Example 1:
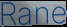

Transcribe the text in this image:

Rane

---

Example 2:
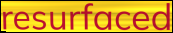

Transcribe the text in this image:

resurfaced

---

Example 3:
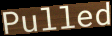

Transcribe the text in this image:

Pulled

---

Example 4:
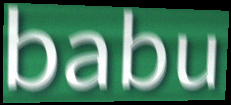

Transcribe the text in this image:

babu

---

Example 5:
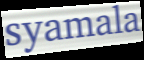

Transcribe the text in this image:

syamala